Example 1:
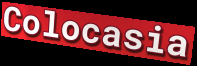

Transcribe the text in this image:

Colocasia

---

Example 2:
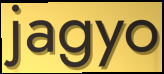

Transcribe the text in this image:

jagyo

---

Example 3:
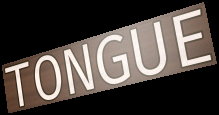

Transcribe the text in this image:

TONGUE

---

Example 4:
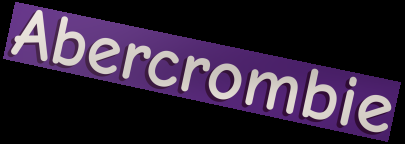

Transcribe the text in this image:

Abercrombie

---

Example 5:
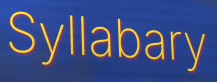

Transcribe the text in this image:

Syllabary